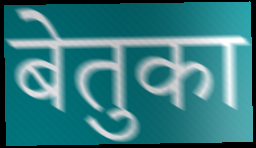
बेतुका